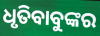
ଧୃତିବାବୁଙ୍କର